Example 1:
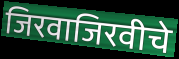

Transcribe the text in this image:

जिरवाजिरवीचे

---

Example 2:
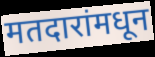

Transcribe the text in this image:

मतदारांमधून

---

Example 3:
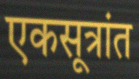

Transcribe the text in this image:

एकसूत्रांत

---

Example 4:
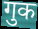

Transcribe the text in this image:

गुक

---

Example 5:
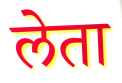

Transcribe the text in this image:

लेता